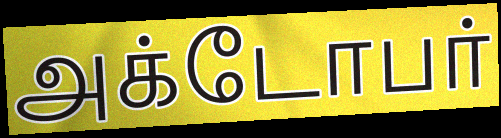
அக்டோபர்